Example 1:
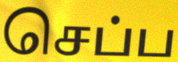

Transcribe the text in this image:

செப்ப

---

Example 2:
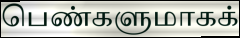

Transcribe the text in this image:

பெண்களுமாகக்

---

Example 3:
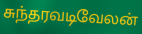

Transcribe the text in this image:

சுந்தரவடிவேலன்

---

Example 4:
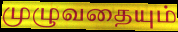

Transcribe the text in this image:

முழுவதையும்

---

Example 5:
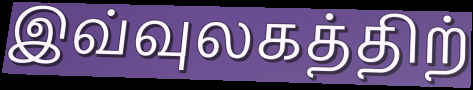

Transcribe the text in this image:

இவ்வுலகத்திற்